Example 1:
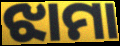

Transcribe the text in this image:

ଝାମା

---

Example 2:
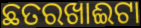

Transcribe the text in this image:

ଛତରଖାଈଟା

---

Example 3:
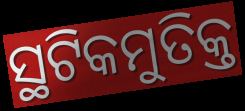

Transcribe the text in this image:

ସ୍ଥଟିକମୁତିକ୍ତ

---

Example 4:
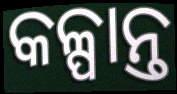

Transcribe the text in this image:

କଳ୍ପାନ୍ତ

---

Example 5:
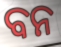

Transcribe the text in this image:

ବନ